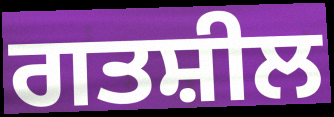
ਗਤਸ਼ੀਲ